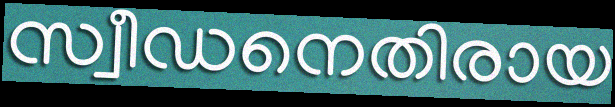
സ്വീഡനെതിരായ